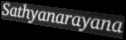
Sathyanarayana